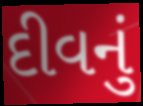
દીવનું